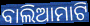
ବାଲିଆମାଟି